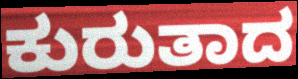
ಕುರುತಾದ